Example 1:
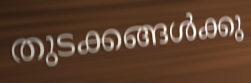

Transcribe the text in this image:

തുടക്കങ്ങൾക്കു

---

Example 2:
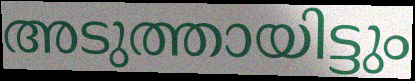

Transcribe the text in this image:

അടുത്തായിട്ടും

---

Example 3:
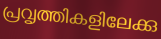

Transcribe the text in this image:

പ്രവൃത്തികളിലേക്കു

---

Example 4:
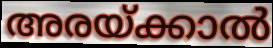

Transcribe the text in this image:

അരയ്ക്കാൽ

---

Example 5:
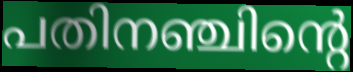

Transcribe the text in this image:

പതിനഞ്ചിന്റെ